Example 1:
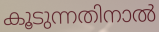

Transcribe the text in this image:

കൂടുന്നതിനാൽ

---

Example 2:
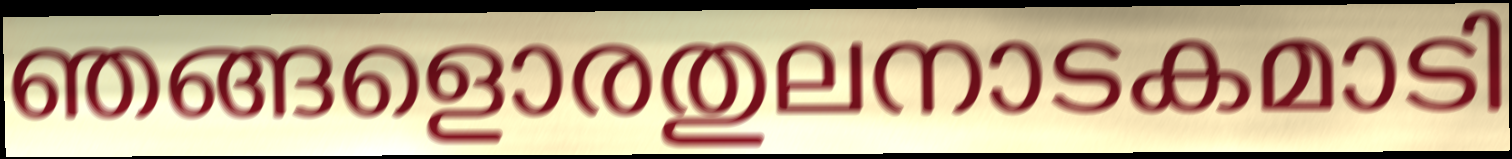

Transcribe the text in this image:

ഞങ്ങളൊരതുലനാടകമാടി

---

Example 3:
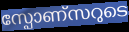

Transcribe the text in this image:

സ്പോണ്സറുടെ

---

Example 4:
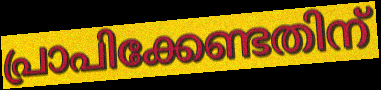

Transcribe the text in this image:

പ്രാപിക്കേണ്ടതിന്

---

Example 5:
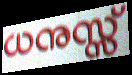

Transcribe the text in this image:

ധനുസ്സ്